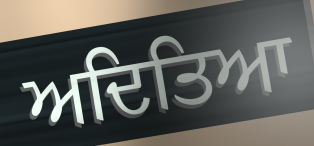
ਅਦਿਤਿਆ